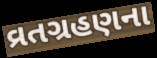
વ્રતગ્રહણના